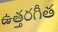
ఉత్తరగీత